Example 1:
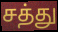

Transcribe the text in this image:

சத்து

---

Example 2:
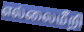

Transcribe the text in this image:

எல்லைமீறி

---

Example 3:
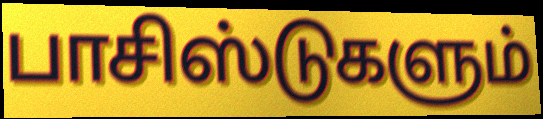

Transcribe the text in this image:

பாசிஸ்டுகளும்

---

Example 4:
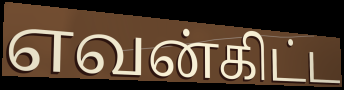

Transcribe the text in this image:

எவன்கிட்ட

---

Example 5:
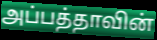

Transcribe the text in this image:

அப்பத்தாவின்